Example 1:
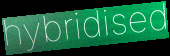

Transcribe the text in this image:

hybridised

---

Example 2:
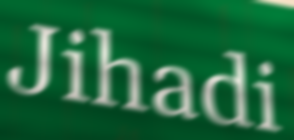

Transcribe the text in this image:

Jihadi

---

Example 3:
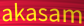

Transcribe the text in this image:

akasam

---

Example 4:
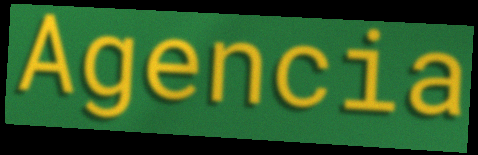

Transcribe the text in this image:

Agencia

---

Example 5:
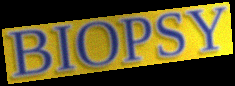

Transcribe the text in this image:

BIOPSY